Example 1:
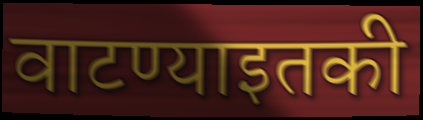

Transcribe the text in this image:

वाटण्याइतकी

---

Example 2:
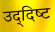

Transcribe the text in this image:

उद्‌दिष्‍ट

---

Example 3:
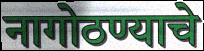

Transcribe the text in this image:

नागोठण्याचे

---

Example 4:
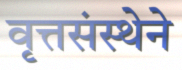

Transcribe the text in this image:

वृत्तसंस्थेने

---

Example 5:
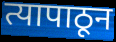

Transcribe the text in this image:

त्यापाठून